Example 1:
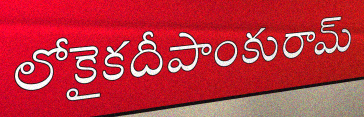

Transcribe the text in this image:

లోకైకదీపాంకురామ్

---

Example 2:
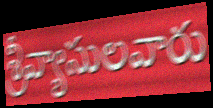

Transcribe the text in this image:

శ్రీవ్యాసులవారు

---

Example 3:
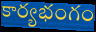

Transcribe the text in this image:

కార్యభంగం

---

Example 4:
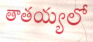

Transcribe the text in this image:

తాతయ్యలో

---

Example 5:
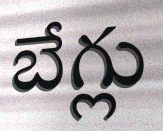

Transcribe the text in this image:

బేగ్లు